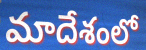
మాదేశంలో